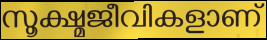
സൂക്ഷ്മജീവികളാണ്